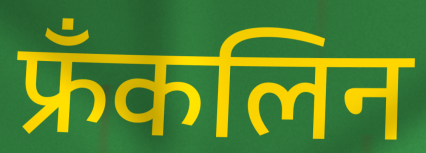
फ्रॅंकलिन